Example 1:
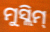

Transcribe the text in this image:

ମୁସ୍ଲିମ୍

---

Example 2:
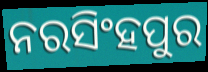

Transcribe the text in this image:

ନରସିଂହପୁର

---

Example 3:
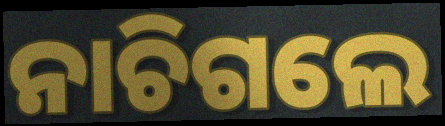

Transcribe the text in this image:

ନାଚିଗଲେ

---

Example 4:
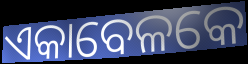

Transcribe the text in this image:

ଏକାବେଳକେ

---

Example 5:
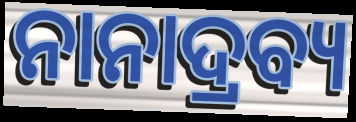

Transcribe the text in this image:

ନାନାଦ୍ରବ୍ୟ